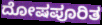
ದೋಷಪೂರಿತ